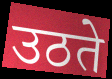
उठते